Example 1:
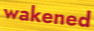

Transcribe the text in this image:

wakened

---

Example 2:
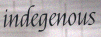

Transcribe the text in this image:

indegenous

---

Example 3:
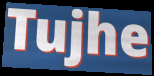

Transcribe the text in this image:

Tujhe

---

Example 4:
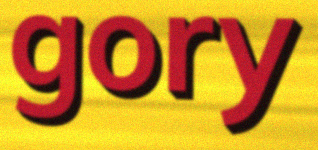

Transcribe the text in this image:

gory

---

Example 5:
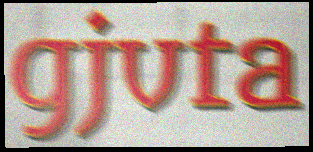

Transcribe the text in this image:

gjuta